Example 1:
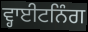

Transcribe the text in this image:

ਵ੍ਹਾਈਟਨਿੰਗ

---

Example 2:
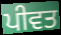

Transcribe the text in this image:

ਪੀਵਤ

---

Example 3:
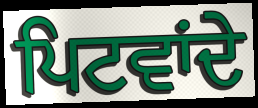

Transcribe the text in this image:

ਪਿਟਵਾਂਦੇ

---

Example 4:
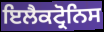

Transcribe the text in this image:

ਇਲੈਕਟ੍ਰੋਨਿਸ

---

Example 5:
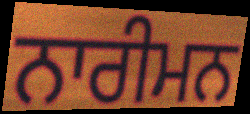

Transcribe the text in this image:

ਨਾਰੀਮਨ